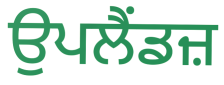
ਉਪਲੈਂਡਜ਼